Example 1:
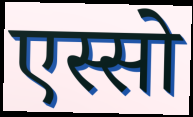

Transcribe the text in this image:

एस्सो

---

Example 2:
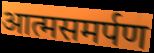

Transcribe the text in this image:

आत्‍मसमर्पण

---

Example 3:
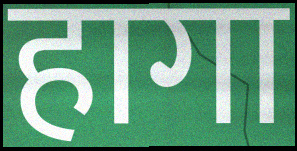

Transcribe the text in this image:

हागा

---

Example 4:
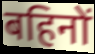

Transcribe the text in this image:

बहिनों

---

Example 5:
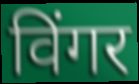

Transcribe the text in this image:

विंगर